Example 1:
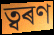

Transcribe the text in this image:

ত্বৰণ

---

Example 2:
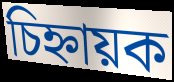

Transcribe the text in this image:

চিহ্নায়ক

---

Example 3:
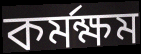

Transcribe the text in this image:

কৰ্মক্ষম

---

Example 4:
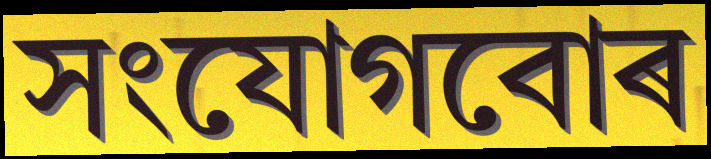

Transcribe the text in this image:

সংযোগবোৰ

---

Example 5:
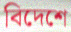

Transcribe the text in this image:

বিদেশে